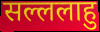
सल्ललाहु